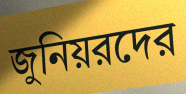
জুনিয়রদের